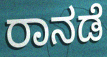
ರಾನಡೆ